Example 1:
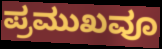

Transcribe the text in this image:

ಪ್ರಮುಖವೂ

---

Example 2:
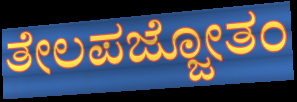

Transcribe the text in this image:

ತೇಲಪಜ್ಜೋತಂ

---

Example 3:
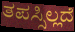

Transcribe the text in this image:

ತಪಸ್ಸಿಲ್ಲದೆ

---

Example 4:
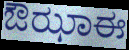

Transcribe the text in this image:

ಔಝಾಈ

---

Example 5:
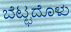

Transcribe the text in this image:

ಬೆಟ್ಟದೊಳು